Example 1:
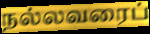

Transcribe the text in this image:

நல்லவரைப்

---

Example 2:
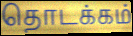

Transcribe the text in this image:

தொடக்கம்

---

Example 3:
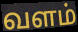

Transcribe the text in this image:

வளம்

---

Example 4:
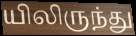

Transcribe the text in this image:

யிலிருந்து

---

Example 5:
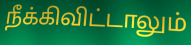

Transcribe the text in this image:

நீக்கிவிட்டாலும்